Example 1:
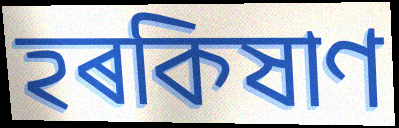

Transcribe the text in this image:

হৰকিষাণ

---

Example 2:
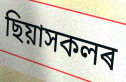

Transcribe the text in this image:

ছিয়াসকলৰ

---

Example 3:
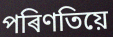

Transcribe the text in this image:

পৰিণতিয়ে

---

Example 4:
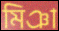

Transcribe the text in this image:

মিঞা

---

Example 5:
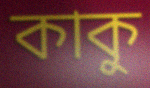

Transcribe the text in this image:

কাকু